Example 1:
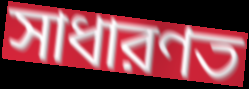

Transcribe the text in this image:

সাধারণত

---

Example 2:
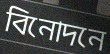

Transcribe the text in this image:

বিনোদনে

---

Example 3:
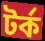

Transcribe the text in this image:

টর্ক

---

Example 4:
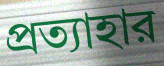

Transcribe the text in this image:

প্রত্যাহার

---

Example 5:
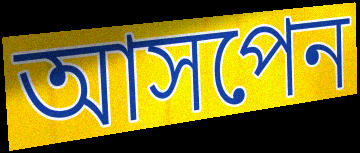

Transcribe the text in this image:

আসপেন